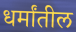
धर्मांतील